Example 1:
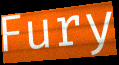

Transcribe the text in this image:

Fury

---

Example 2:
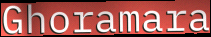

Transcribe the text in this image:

Ghoramara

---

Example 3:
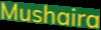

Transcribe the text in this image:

Mushaira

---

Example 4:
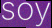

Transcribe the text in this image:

soy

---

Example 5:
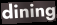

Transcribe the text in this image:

dining